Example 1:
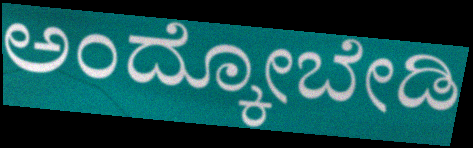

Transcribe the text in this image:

ಅಂದ್ಕೋಬೇಡಿ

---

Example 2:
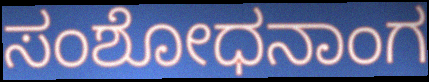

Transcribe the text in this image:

ಸಂಶೋಧನಾಂಗ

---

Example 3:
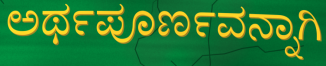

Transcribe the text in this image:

ಅರ್ಥಪೂರ್ಣವನ್ನಾಗಿ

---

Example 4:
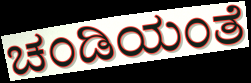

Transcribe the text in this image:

ಚಂಡಿಯಂತೆ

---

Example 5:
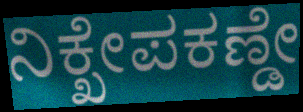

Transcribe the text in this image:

ನಿಕ್ಖೇಪಕಣ್ಡೇ